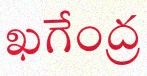
ఖగేంద్ర